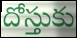
దోస్తుకు